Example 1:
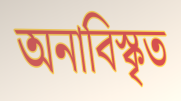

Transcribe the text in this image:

অনাবিস্কৃত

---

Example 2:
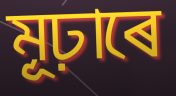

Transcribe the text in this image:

মূঢ়াৰে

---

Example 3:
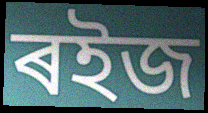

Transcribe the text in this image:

ৰইজ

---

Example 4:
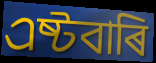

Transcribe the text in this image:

এষ্টবাৰি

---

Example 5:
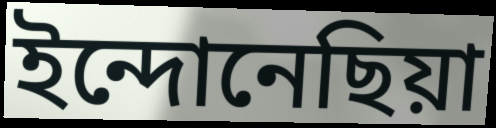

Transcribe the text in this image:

ইন্দোনেছিয়া